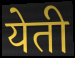
येती